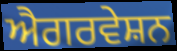
ਐਗਰਵੇਸ਼ਨ